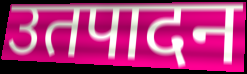
उतपादन